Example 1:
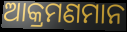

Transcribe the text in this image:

ଆକ୍ରମଣମାନ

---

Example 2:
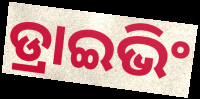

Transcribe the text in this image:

ଡ୍ରାଇଭିଂ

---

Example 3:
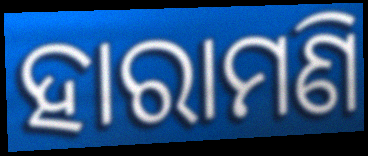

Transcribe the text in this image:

ହାରାମଣି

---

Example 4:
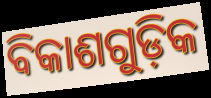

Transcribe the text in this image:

ବିକାଶଗୁଡ଼ିକ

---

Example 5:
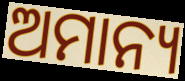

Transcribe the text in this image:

ଅମାନ୍ଯ